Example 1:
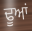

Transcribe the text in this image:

ਢੂਆਂ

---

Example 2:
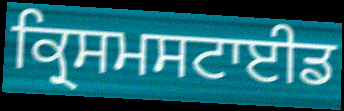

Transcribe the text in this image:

ਕ੍ਰਿਸਮਸਟਾਈਡ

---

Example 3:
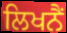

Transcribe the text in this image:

ਲਿਖਨੈਂ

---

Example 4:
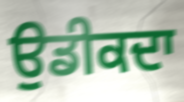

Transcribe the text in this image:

ਉਡੀਕਦਾ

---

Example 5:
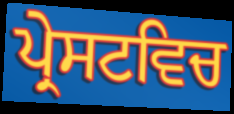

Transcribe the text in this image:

ਪ੍ਰੇਸਟਵਿਚ